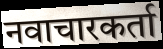
नवाचारकर्ता